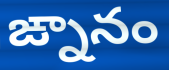
ఙ్నానం